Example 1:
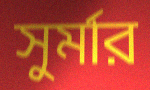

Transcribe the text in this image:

সুর্মার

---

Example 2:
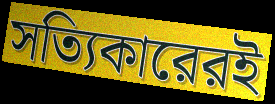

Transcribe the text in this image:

সত্যিকারেরই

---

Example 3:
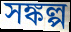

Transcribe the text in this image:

সঙ্কল্প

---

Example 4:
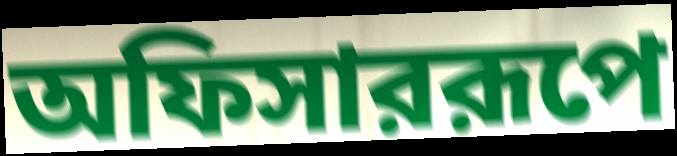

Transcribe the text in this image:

অফিসাররূপে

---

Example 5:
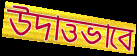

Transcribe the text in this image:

উদাত্তভাবে